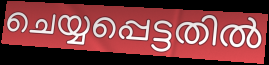
ചെയ്യപ്പെട്ടതിൽ